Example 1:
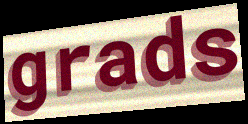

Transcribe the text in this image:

grads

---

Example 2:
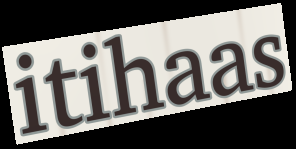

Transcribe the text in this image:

itihaas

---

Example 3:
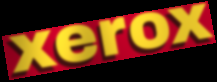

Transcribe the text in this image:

xerox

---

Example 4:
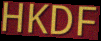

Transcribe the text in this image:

HKDF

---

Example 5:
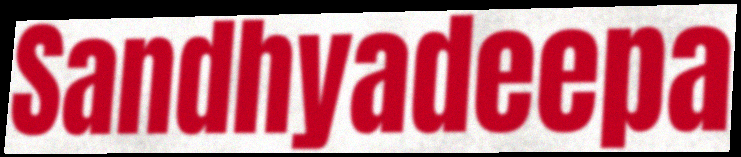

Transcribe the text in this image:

Sandhyadeepa